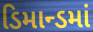
ડિમાન્ડમાં